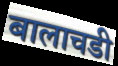
बालाचडी